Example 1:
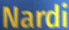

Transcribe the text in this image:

Nardi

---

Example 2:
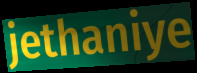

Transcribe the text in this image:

jethaniye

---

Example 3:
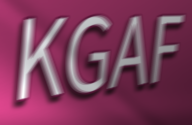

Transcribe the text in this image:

KGAF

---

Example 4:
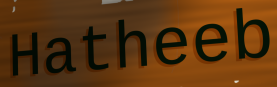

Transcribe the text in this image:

Hatheeb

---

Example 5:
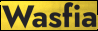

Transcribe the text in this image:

Wasfia